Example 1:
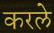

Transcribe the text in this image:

करले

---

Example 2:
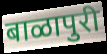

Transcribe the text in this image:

बाळापुरी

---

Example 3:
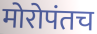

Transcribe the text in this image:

मोरोपंतच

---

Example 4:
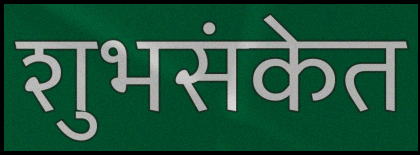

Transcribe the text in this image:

शुभसंकेत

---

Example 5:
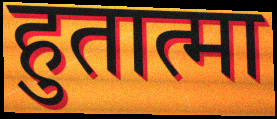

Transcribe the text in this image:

हुतात्मा